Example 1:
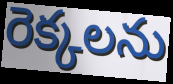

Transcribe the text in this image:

రెక్కలను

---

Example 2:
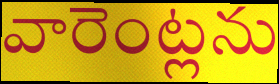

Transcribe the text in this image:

వారెంట్లను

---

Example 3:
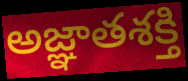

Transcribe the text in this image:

అజ్ఞాతశక్తి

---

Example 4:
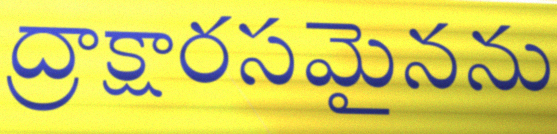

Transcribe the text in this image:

ద్రాక్షారసమైనను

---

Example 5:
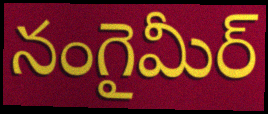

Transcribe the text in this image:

నంగైమీర్